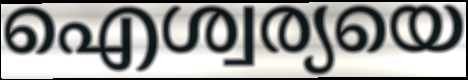
ഐശ്വര്യയെ